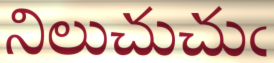
నిలుచుచుఁ